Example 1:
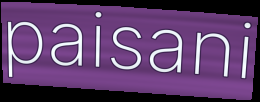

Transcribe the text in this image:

paisani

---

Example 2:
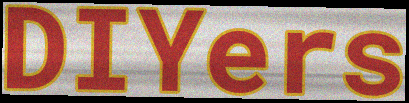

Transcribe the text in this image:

DIYers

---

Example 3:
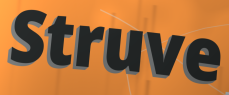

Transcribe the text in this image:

Struve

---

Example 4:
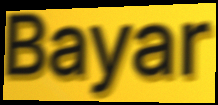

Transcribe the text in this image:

Bayar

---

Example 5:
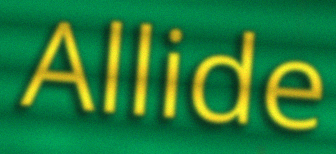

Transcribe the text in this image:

Allide